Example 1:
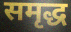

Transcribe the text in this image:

समृद्ध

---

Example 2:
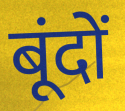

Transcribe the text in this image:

बूंदों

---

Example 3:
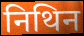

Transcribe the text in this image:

निथिन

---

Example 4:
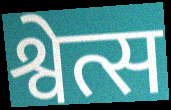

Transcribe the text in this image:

श्वेत्स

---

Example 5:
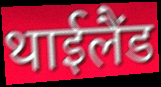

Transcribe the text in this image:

थाईलैंड